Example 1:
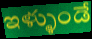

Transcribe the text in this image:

ఇళ్ళుండే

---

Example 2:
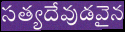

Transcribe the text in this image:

సత్యదేవుడవైన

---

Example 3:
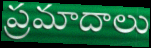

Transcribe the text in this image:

ప్రమాదాలు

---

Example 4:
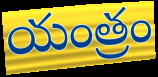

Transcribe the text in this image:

యంత్రం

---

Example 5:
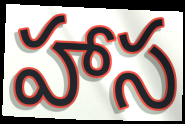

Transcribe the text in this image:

హాస